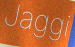
Jaggi